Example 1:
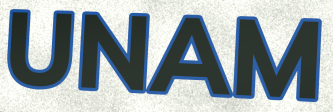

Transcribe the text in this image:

UNAM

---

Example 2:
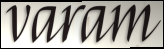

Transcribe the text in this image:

varam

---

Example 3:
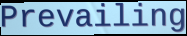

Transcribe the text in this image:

Prevailing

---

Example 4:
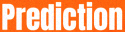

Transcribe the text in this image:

Prediction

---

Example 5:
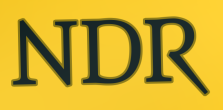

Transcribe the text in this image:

NDR